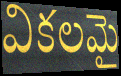
వికలమై